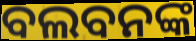
ବଲବନଙ୍କ